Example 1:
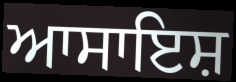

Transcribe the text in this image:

ਆਸਾਇਸ਼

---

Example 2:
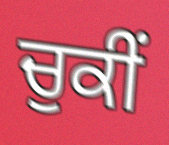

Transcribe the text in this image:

ਚੁਕੀਂ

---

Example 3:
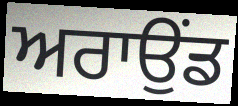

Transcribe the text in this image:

ਅਰਾਉਂਡ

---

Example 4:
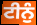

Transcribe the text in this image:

ਟੀਨੁੰ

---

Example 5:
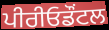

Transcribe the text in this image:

ਪੀਰੀਓਡੌਂਟਲ